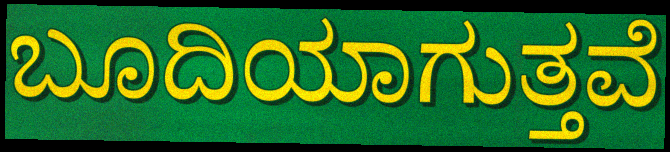
ಬೂದಿಯಾಗುತ್ತವೆ